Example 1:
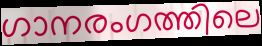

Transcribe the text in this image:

ഗാനരംഗത്തിലെ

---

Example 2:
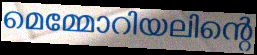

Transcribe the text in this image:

മെമ്മോറിയലിന്റെ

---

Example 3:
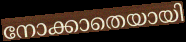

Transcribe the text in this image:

നോക്കാതെയായി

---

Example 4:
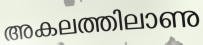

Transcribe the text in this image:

അകലത്തിലാണു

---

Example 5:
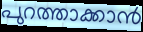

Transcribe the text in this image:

പുറത്താക്കാൻ